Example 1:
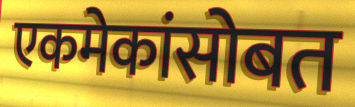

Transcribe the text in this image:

एकमेकांसोबत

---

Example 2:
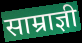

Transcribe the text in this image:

साम्राज्ञी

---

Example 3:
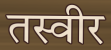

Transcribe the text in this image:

तस्वीर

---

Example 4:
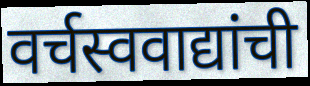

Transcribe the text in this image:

वर्चस्ववाद्यांची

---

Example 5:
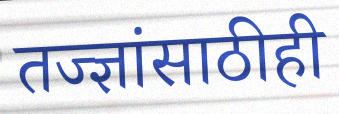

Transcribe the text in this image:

तज्ज्ञांसाठीही